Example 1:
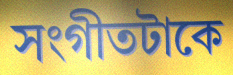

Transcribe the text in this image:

সংগীতটাকে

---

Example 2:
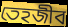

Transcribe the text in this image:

তেহজীব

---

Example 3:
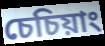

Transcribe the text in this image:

চেচিয়াং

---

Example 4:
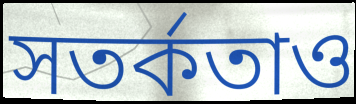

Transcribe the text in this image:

সতর্কতাও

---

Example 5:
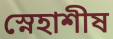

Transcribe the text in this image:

স্নেহাশীষ